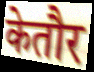
केतौर